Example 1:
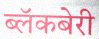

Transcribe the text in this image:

ब्लॅकबेरी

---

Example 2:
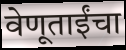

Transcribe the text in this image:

वेणूताईंचा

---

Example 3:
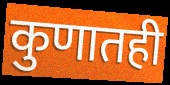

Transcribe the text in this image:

कुणातही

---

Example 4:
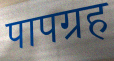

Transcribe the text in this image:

पापग्रह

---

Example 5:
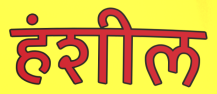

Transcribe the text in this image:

हंशील